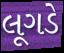
લૂગડે